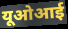
यूओआई